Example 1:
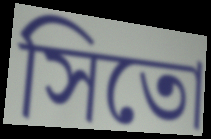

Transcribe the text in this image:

সিতো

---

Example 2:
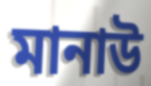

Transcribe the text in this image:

মানাউ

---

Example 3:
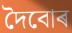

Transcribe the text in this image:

দৈবোৰ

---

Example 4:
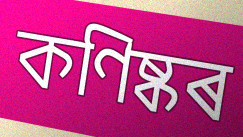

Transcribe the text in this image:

কণিষ্কৰ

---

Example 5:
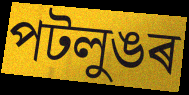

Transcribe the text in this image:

পটলুঙৰ